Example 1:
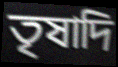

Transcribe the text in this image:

তৃষাদি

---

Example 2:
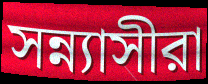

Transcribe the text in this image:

সন্ন্যাসীরা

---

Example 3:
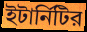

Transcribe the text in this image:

ইটার্নিটির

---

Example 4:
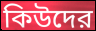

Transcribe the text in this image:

কিউদের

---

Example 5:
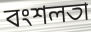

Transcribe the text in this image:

বংশলতা